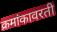
क्रमांकावरती